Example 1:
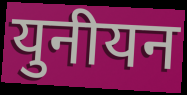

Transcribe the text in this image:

युनीयन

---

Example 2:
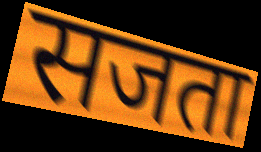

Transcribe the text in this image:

सजता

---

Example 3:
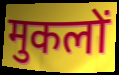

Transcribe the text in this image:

मुकलों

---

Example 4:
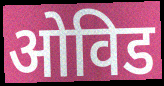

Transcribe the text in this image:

ओविड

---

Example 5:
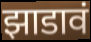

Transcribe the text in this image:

झाडावं